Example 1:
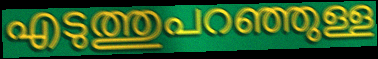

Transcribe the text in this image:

എടുത്തുപറഞ്ഞുള്ള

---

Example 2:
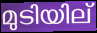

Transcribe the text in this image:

മുടിയില്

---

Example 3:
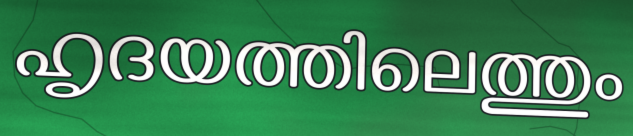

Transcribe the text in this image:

ഹൃദയത്തിലെത്തും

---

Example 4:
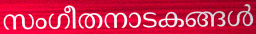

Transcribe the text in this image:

സംഗീതനാടകങ്ങൾ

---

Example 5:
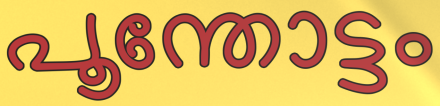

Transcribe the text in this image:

പൂന്തോട്ടം